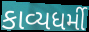
કાવ્યધર્મી